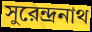
সুরেন্দ্রনাথ